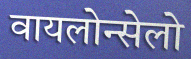
वायलोन्सेलो